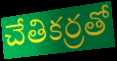
చేతికర్రతో